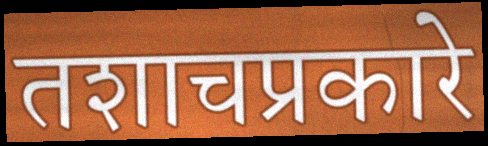
तशाचप्रकारे